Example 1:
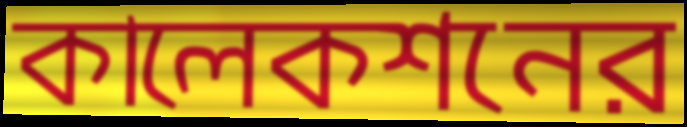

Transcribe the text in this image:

কালেকশনের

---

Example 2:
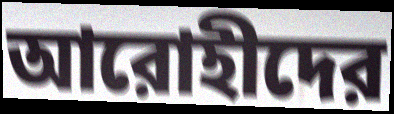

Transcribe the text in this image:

আরোহীদের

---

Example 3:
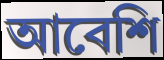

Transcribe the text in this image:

আবেশি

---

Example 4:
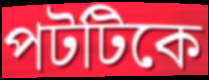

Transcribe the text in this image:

পটটিকে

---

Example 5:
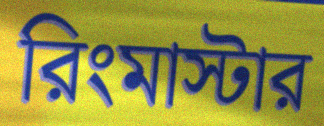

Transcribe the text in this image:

রিংমাস্টার